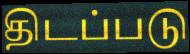
திடப்படு